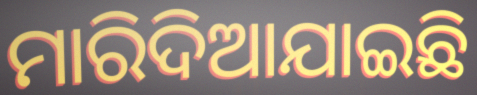
ମାରିଦିଆଯାଇଛି